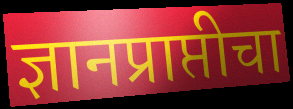
ज्ञानप्राप्तीचा